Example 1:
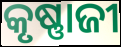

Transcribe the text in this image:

କୃଷ୍ଣାଜୀ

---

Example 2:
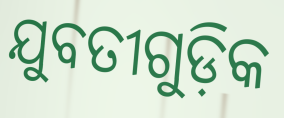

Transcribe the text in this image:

ଯୁବତୀଗୁଡ଼ିକ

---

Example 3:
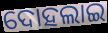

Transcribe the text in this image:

ଦୋହଲାଇ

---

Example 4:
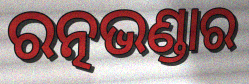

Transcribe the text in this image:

ରତ୍ନଭଣ୍ଡାର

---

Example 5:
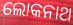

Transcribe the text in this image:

ଲୋକନାଥ